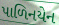
પાળિનયેન